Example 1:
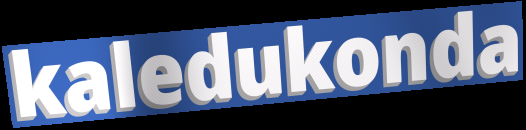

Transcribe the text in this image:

kaledukonda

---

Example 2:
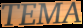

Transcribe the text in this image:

TEMA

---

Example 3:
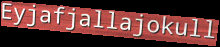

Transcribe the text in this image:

Eyjafjallajokull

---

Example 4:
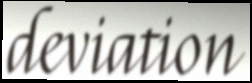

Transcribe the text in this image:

deviation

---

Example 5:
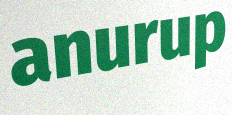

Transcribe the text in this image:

anurup